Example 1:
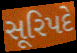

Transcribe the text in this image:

સૂરિપદે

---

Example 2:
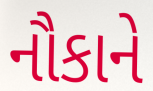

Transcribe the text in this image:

નૌકાને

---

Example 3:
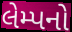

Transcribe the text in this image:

લેમ્પનો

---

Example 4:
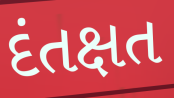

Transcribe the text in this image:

દંતક્ષત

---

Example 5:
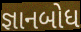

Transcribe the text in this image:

જ્ઞાનબોધ